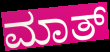
ಮಾತ್